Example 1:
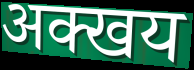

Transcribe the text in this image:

अक्खय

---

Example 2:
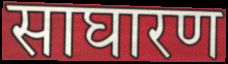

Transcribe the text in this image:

साघारण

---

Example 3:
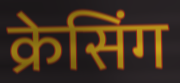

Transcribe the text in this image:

क्रेसिंग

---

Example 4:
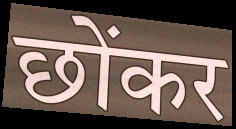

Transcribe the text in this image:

छोंकर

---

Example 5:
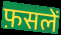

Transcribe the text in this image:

फ़सलें